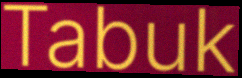
Tabuk